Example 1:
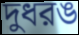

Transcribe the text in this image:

দুধরঙ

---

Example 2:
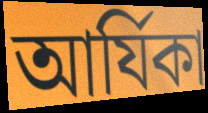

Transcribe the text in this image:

আর্যিকা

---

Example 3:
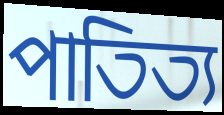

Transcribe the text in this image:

পাতিত্য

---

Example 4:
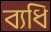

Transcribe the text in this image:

ব্যধি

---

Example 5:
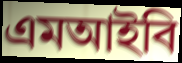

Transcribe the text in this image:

এমআইবি